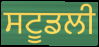
ਸਟੂਡਲੀ